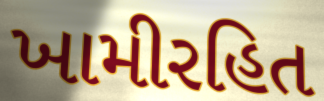
ખામીરહિત